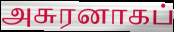
அசுரனாகப்